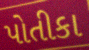
પોતીકા